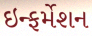
ઇન્ફર્મેશન